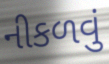
નીકળવું